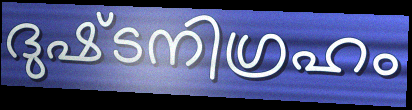
ദുഷ്‌ടനിഗ്രഹം